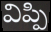
విప్పి